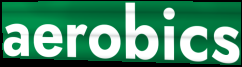
aerobics